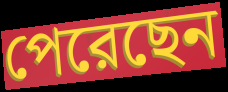
পেরেছেন